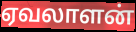
ஏவலாளன்